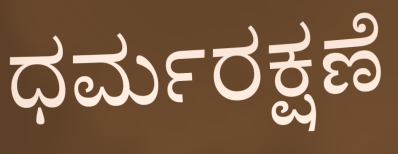
ಧರ್ಮರಕ್ಷಣೆ